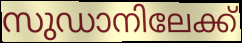
സുഡാനിലേക്ക്